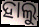
ହାଲୁ